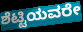
ಶೆಟ್ಟಿಯವರೇ